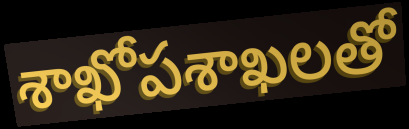
శాఖోపశాఖలతో